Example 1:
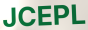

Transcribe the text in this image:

JCEPL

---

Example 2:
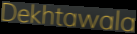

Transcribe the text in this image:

Dekhtawala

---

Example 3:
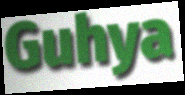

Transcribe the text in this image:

Guhya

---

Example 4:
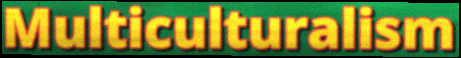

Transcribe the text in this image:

Multiculturalism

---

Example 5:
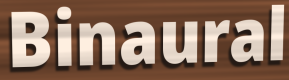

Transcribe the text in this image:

Binaural